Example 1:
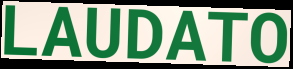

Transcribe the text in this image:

LAUDATO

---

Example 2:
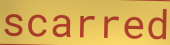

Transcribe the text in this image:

scarred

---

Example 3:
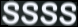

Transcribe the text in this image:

ssss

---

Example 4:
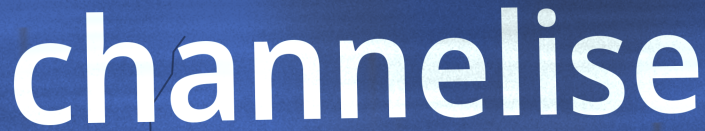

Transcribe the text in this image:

channelise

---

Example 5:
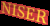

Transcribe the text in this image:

NISER